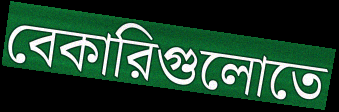
বেকারিগুলোতে